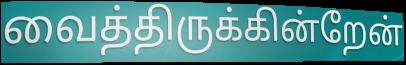
வைத்திருக்கின்றேன்